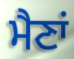
ਮੈਣਾਂ